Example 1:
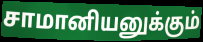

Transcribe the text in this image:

சாமானியனுக்கும்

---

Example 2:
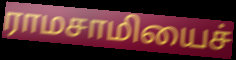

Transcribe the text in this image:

ராமசாமியைச்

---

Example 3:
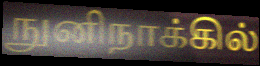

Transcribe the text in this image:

நுனிநாக்கில்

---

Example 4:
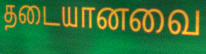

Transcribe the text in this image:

தடையானவை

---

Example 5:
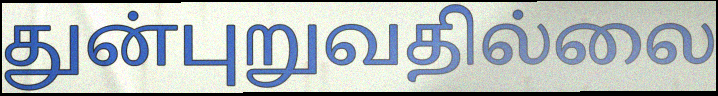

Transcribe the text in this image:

துன்புறுவதில்லை